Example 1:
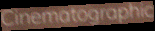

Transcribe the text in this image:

Cinematographic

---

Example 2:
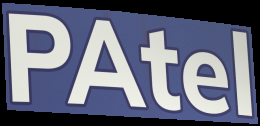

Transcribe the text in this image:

PAtel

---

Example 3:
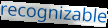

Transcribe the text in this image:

recognizable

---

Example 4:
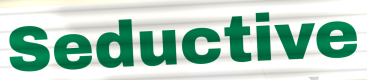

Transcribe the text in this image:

Seductive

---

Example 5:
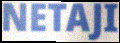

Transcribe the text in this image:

NETAJI